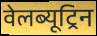
वेलब्यूट्रिन